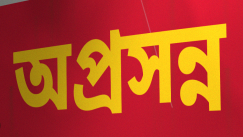
অপ্রসন্ন